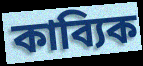
কাব্যিক